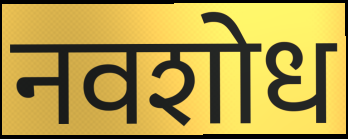
नवशोध